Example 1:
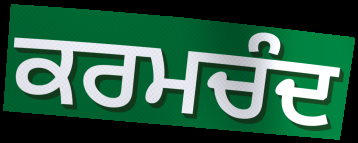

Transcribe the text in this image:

ਕਰਮਚੰਦ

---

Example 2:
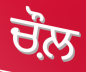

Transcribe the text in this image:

ਚੌਲ਼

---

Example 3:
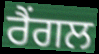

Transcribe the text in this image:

ਰੈਂਗਲ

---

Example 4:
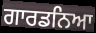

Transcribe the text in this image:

ਗਾਰਡਨਿਆ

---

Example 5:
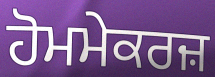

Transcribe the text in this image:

ਹੋਮਮੇਕਰਜ਼